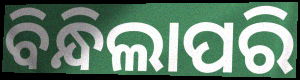
ବିନ୍ଧିଲାପରି